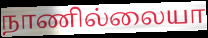
நாணில்லையா